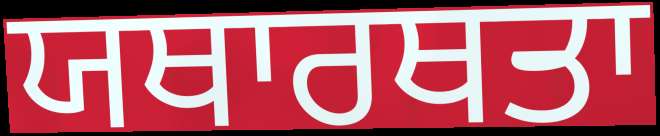
ਯਥਾਰਥਤਾ